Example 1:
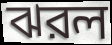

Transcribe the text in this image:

ঝরল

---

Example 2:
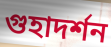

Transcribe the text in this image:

গুহাদর্শন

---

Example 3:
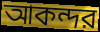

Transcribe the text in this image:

আকন্দর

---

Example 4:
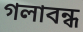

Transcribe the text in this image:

গলাবন্ধ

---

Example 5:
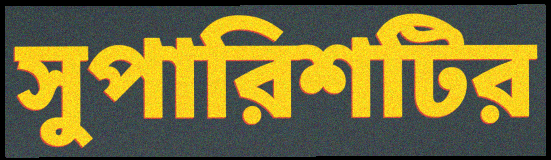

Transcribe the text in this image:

সুপারিশটির